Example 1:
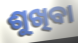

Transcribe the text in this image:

ଶୁଖିବା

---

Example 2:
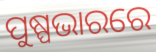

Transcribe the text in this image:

ପୁଷ୍ପଭାରରେ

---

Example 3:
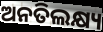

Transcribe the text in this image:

ଅନତିଲକ୍ଷ୍ୟ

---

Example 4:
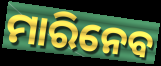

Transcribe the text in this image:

ମାରିନେବ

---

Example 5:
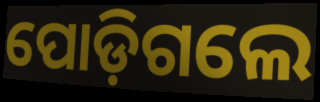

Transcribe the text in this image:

ପୋଡ଼ିଗଲେ